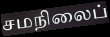
சமநிலைப்